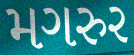
મગરુર